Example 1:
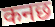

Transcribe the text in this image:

कनछ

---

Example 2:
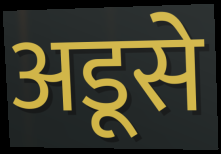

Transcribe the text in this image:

अडूसे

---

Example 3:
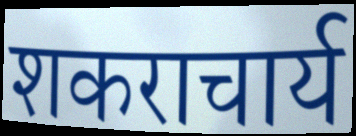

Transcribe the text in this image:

शकराचार्य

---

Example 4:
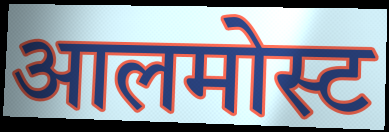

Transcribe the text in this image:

आलमोस्ट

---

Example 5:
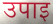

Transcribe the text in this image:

उपाइ